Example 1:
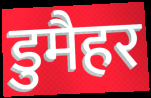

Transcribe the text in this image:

डुमैहर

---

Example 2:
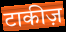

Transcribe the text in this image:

टाकीज़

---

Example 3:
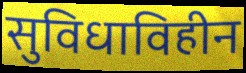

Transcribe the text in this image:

सुविधाविहीन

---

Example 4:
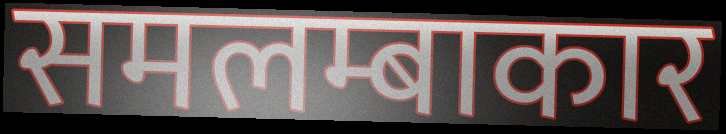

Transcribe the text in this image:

समलम्बाकार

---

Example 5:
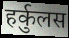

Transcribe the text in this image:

हर्कुलस